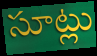
సూట్లు